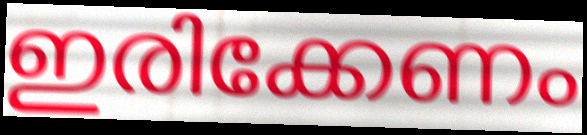
ഇരിക്കേണം